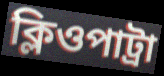
ক্লিওপাট্রা